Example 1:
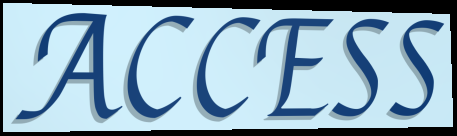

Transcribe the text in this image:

ACCESS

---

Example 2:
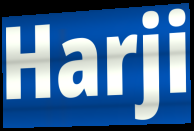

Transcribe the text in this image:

Harji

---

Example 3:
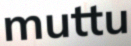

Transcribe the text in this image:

muttu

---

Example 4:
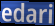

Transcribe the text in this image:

edari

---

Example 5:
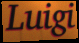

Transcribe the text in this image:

Luigi